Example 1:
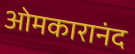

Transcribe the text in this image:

ओमकारानंद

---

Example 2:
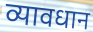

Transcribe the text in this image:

व्यावधान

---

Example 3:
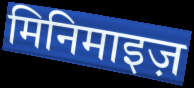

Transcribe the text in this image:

मिनिमाइज़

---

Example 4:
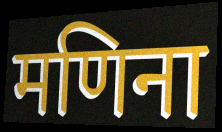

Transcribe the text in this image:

मणिना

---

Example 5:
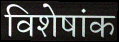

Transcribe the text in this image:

विशेषांक